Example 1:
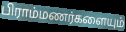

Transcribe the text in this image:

பிராம்மணர்களையும்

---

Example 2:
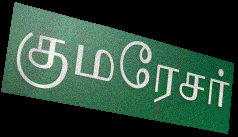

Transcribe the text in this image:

குமரேசர்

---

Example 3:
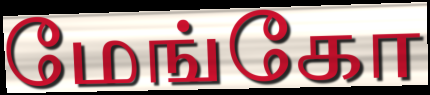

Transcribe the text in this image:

மேங்கோ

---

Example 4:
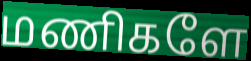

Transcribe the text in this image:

மணிகளே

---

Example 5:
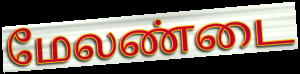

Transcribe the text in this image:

மேலண்டை